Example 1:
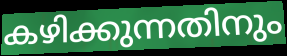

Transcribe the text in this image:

കഴിക്കുന്നതിനും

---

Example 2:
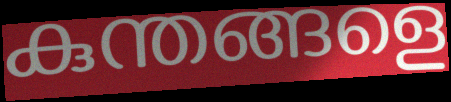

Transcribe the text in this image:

കുന്തങ്ങളെ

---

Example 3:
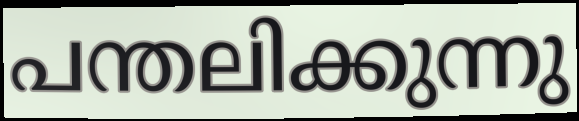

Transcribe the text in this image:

പന്തലിക്കുന്നു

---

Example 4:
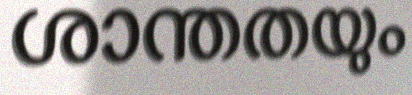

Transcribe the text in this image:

ശാന്തതയും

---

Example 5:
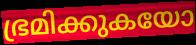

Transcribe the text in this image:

ഭ്രമിക്കുകയോ